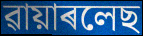
ৱায়াৰলেছ